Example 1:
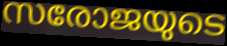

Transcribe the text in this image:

സരോജയുടെ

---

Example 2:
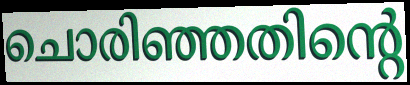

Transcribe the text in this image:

ചൊരിഞ്ഞതിന്റെ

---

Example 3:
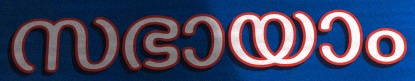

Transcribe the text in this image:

സഭായാം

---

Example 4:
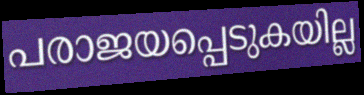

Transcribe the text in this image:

പരാജയപ്പെടുകയില്ല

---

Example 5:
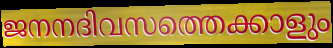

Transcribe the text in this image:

ജനനദിവസത്തെക്കാളും